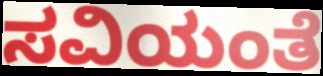
ಸವಿಯಂತೆ